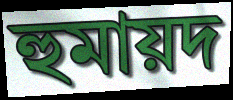
হুমায়দ